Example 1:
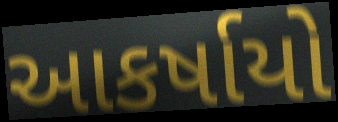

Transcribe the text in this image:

આકર્ષાયો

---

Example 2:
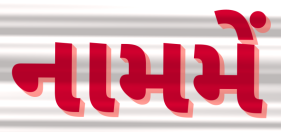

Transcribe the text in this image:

નામમેં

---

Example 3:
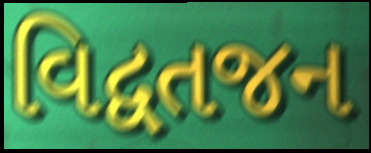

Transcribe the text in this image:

વિદ્વતજન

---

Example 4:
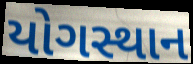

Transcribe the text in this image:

યોગસ્થાન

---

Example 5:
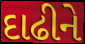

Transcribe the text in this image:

દાઢીને